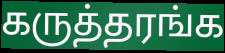
கருத்தரங்க